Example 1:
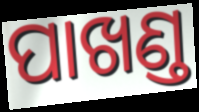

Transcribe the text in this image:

ପାଖଣ୍ଡ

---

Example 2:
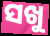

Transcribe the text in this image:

ସଖୁ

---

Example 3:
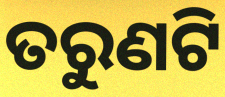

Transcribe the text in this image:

ତରୁଣଟି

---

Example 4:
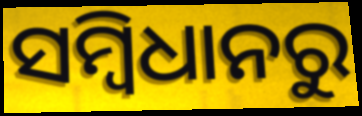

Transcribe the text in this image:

ସମ୍ବିଧାନରୁ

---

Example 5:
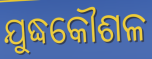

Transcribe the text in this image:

ଯୁଦ୍ଧକୌଶଳ